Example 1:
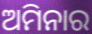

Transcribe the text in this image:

ଅମିନାର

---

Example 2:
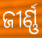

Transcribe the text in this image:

ଜୀର୍ଣ୍ଣ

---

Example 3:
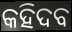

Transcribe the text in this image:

କହିଦବ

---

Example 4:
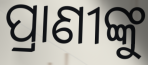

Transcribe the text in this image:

ପ୍ରାଣୀଙ୍କୁ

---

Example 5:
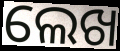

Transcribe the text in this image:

ଲେଖ